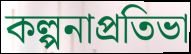
কল্পনাপ্রতিভা